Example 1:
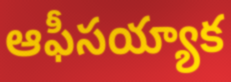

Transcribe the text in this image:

ఆఫీసయ్యాక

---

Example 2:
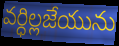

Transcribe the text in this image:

వర్ధిల్లజేయును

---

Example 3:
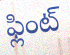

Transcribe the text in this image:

ఫ్లింట్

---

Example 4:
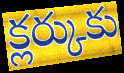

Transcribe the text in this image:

క్లర్కుకు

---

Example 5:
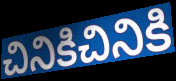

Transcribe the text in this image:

చినికిచినికి